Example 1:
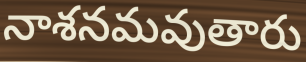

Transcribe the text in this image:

నాశనమవుతారు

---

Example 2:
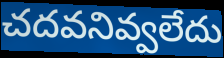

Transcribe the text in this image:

చదవనివ్వలేదు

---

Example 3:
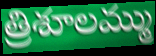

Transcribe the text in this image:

త్రిశూలమ్ము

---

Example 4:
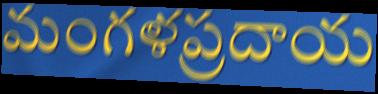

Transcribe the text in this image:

మంగళప్రదాయ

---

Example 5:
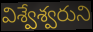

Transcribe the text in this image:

విశ్వేశ్వరుని